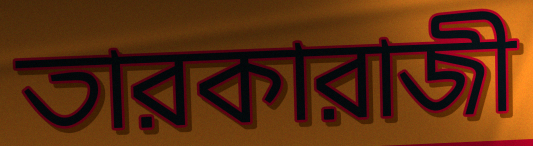
তারকারাজী